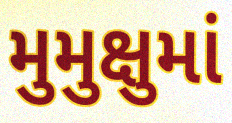
મુમુક્ષુમાં